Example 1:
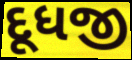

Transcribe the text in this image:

દૂધજી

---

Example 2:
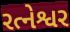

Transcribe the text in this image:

રત્નેશ્વર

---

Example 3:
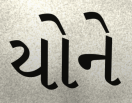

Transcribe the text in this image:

યોને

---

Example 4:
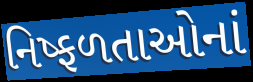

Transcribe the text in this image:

નિષ્ફળતાઓનાં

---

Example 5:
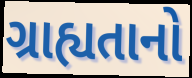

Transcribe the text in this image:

ગ્રાહ્યતાનો